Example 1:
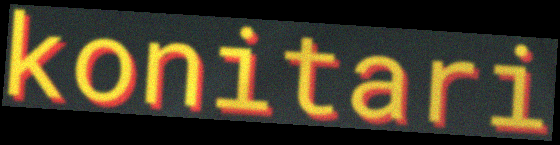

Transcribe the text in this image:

konitari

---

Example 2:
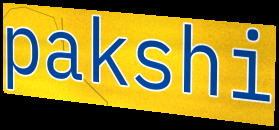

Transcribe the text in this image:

pakshi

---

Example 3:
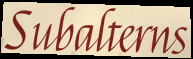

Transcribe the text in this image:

Subalterns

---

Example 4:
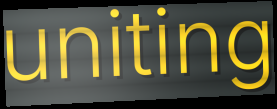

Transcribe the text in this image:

uniting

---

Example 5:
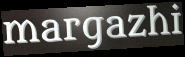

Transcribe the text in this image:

margazhi